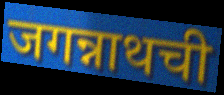
जगन्नाथची